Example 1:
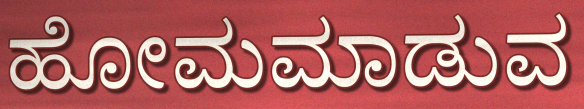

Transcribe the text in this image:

ಹೋಮಮಾಡುವ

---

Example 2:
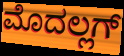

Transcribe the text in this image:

ಮೊದಲ್ಲಗ್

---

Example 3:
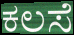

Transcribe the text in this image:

ಕಲಸೆ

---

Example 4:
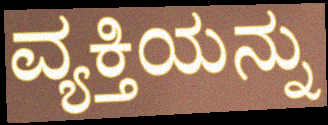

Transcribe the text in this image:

ವ್ಯಕ್ತಿಯನ್ನು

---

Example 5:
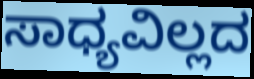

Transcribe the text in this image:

ಸಾಧ್ಯವಿಲ್ಲದ